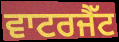
ਵਾਟਰਜੈੱਟ